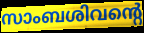
സാംബശിവന്റെ